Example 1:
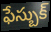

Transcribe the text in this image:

ఫేస్బుక్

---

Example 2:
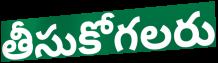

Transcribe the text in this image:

తీసుకోగలరు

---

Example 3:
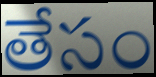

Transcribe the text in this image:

తేసం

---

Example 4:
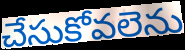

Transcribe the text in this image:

చేసుకోవలెను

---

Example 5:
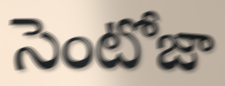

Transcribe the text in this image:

సెంటోజా